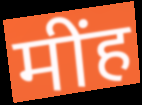
मींह